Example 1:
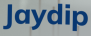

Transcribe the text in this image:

Jaydip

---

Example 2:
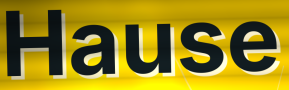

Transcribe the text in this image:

Hause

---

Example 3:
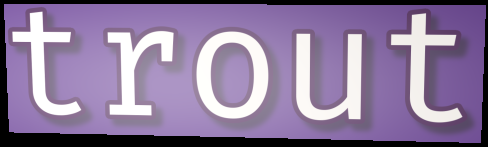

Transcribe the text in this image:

trout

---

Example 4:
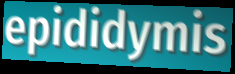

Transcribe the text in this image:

epididymis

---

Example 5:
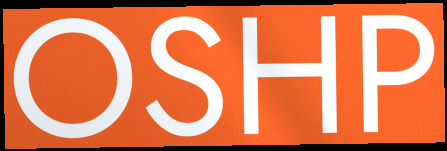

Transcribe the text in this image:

OSHP